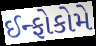
ઈન્ફોકોમે